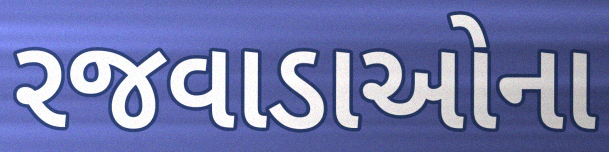
રજવાડાઓના